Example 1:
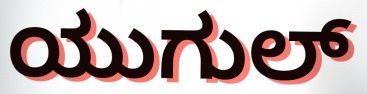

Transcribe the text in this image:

ಯುಗುಲ್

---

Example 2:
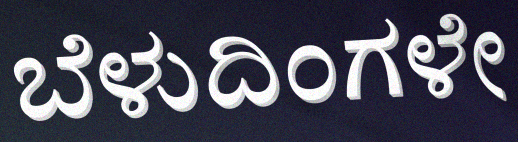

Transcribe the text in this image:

ಬೆಳುದಿಂಗಳೇ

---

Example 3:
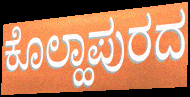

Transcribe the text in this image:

ಕೊಲ್ಹಾಪುರದ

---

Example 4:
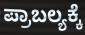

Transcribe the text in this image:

ಪ್ರಾಬಲ್ಯಕ್ಕೆ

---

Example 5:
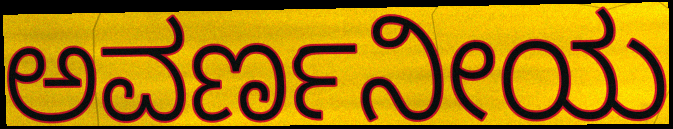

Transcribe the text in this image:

ಅವರ್ಣನೀಯ